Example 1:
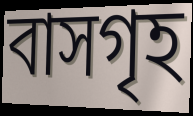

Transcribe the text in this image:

বাসগৃহ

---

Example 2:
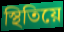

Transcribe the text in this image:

স্থিতিয়ে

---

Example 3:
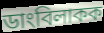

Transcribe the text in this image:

ডাংবিলাকক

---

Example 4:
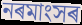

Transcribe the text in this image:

নৰমাংসৰ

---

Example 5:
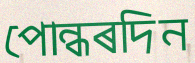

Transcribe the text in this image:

পোন্ধৰদিন